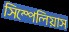
সিম্পেলিয়াস